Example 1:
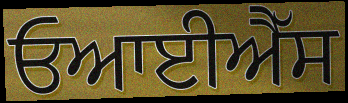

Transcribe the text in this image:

ਓਆਈਐੱਸ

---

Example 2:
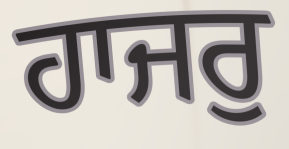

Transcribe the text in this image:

ਹਾਜਰੁ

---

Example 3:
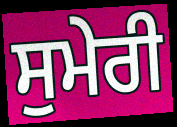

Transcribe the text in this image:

ਸੁਮੇਰੀ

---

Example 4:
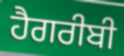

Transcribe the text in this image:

ਹੈਗਰੀਬੀ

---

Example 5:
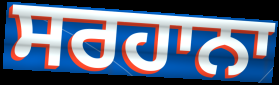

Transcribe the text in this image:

ਸਰਹਾਨਾ